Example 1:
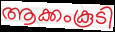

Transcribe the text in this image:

ആക്കംകൂടി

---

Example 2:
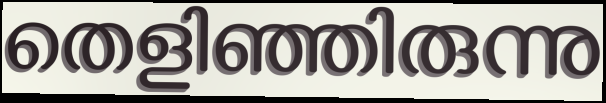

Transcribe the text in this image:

തെളിഞ്ഞിരുന്നു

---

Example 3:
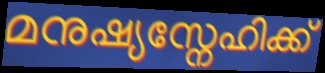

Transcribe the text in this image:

മനുഷ്യസ്നേഹിക്ക്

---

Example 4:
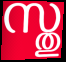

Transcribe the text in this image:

സ്തു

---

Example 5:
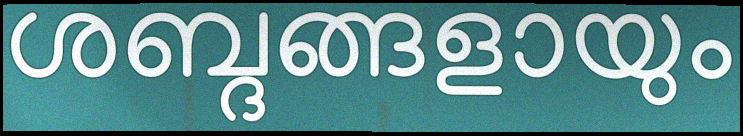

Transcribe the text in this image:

ശബ്ദങ്ങളായും